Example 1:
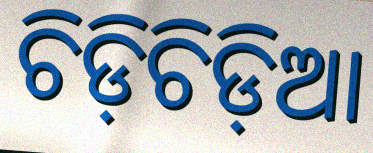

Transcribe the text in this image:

ଚିଡ଼ିଚିଡ଼ିଆ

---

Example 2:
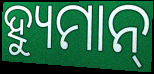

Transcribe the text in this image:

ହ୍ୟୁମାନ୍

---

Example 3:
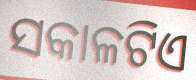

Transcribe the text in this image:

ସକାଳଟିଏ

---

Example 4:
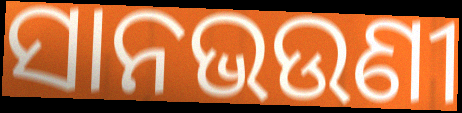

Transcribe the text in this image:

ସାନଭଉଣୀ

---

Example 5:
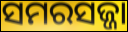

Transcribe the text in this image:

ସମରସଜ୍ଜା